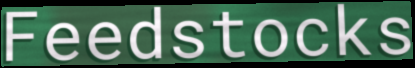
Feedstocks